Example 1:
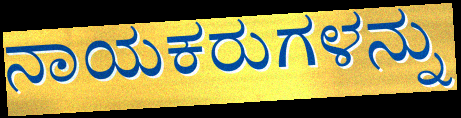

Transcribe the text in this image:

ನಾಯಕರುಗಳನ್ನು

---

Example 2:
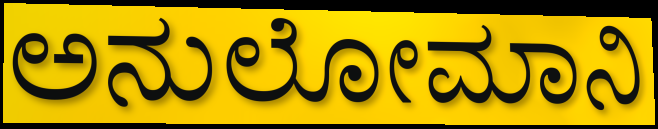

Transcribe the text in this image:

ಅನುಲೋಮಾನಿ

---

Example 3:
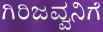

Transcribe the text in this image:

ಗಿರಿಜವ್ವನಿಗೆ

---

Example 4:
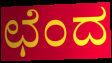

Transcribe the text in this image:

ಛೆಂದ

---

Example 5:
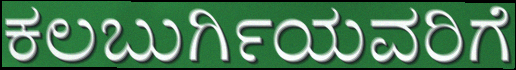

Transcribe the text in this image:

ಕಲಬುರ್ಗಿಯವರಿಗೆ